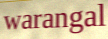
warangal